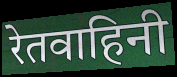
रेतवाहिनी